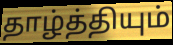
தாழ்த்தியும்